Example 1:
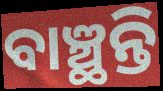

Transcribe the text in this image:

ବାଞ୍ଛନ୍ତି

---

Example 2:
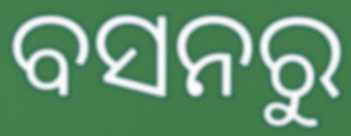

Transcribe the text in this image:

ବସନରୁ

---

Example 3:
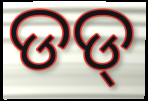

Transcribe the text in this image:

ଡଡ୍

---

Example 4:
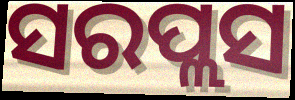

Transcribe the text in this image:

ସରପ୍ଲସ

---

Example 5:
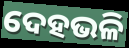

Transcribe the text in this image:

ଦେହଭଳି